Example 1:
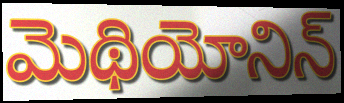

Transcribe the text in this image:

మెథియోనిన్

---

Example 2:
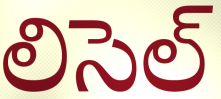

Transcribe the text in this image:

లిసెల్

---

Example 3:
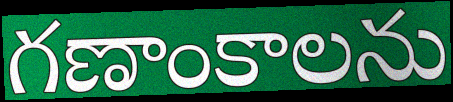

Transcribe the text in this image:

గణాంకాలను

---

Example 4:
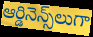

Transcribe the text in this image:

ఆర్డినెన్స్‌లుగా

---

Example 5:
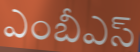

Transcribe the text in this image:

ఎంబీఎస్